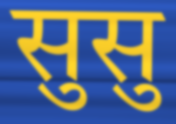
सुसु